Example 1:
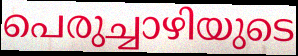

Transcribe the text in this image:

പെരുച്ചാഴിയുടെ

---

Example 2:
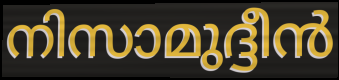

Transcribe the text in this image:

നിസാമുദ്ദീൻ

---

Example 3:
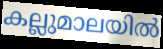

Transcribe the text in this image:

കല്ലുമാലയിൽ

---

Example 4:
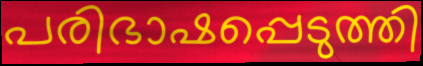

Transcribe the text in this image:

പരിഭാഷപ്പെടുത്തി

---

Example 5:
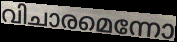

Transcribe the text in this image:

വിചാരമെന്നോ